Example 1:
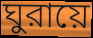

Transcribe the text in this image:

ঘুরায়ে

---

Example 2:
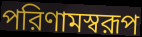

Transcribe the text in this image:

পরিণামস্বরূপ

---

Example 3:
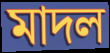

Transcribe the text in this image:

মাদল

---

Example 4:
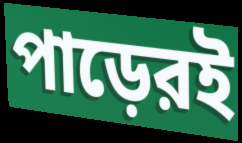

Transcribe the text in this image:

পাড়েরই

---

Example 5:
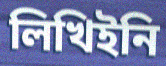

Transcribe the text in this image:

লিখিইনি